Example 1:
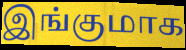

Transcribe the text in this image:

இங்குமாக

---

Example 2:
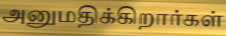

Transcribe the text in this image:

அனுமதிக்கிறார்கள்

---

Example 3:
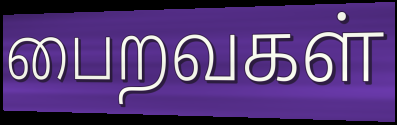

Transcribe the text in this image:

பைறவகள்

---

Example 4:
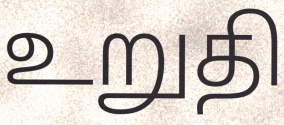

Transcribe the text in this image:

உறுதி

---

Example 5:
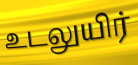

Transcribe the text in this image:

உடலுயிர்